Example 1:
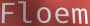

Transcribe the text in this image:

Floem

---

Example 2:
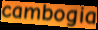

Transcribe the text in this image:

cambogia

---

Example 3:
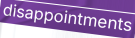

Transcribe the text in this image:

disappointments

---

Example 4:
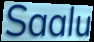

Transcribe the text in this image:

Saalu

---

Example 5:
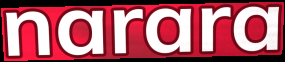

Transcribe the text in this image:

narara